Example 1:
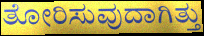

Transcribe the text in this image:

ತೋರಿಸುವುದಾಗಿತ್ತು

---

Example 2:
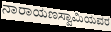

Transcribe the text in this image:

ನಾರಾಯಣಸ್ವಾಮಿಯವರ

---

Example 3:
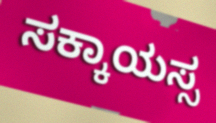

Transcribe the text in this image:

ಸಕ್ಕಾಯಸ್ಸ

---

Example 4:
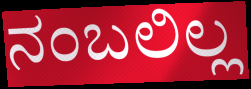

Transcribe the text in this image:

ನಂಬಲಿಲ್ಲ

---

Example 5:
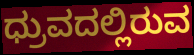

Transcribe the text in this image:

ಧ್ರುವದಲ್ಲಿರುವ